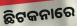
ଛିଟକନାରେ